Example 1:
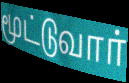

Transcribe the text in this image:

மூட்டுவார்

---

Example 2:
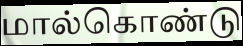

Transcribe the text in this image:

மால்கொண்டு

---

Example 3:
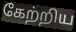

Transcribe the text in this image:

கேற்றிய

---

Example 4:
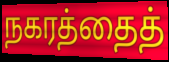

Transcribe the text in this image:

நகரத்தைத்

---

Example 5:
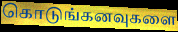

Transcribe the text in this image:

கொடுங்கனவுகளை